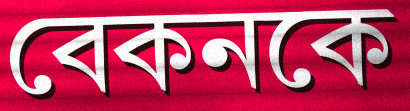
বেকনকে